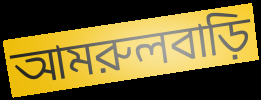
আমরুলবাড়ি